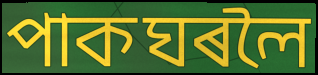
পাকঘৰলৈ